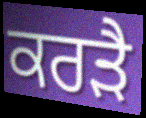
ਕਰੜੈ